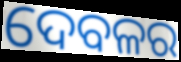
ଦେବଳର